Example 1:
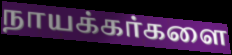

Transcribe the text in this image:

நாயக்கர்களை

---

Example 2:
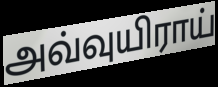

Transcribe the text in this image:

அவ்வுயிராய்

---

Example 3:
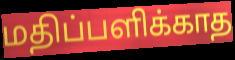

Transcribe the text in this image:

மதிப்பளிக்காத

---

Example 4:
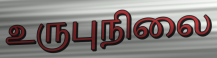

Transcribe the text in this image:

உருபுநிலை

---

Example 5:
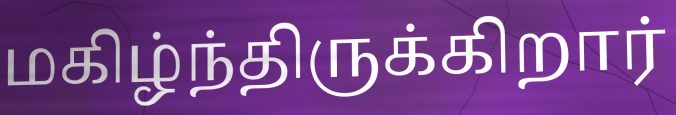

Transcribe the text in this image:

மகிழ்ந்திருக்கிறார்